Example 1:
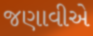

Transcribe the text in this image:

જણાવીએ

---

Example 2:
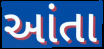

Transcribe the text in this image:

આંતા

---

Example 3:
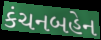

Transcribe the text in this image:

કંચનબહેન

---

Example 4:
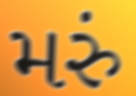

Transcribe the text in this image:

મરું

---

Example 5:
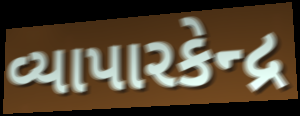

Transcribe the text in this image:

વ્યાપારકેન્દ્ર